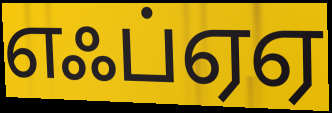
எஃப்ஏஏ